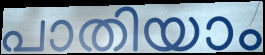
പാതിയാം